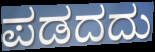
ಪಡದದು